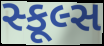
સ્કૂલ્સ